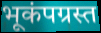
भूकंपग्रस्त